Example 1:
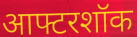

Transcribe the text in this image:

आफ्टरशॉक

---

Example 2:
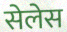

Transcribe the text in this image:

सेलेस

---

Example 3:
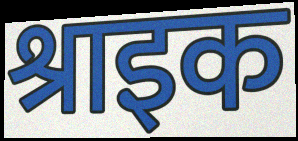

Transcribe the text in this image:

श्राइक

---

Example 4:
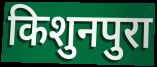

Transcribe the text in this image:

किशुनपुरा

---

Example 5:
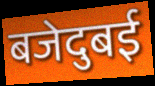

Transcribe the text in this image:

बजेदुबई